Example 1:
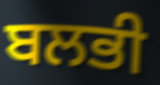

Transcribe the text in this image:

ਬਲਭੀ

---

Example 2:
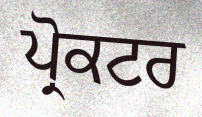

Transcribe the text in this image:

ਪ੍ਰੋਕਟਰ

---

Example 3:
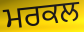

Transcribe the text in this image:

ਮਰਕਲ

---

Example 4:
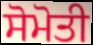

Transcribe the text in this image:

ਸੋਮੋਤੀ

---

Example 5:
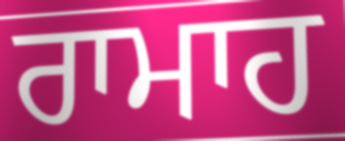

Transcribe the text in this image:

ਰਾਮਾਹ